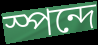
স্পন্দে